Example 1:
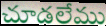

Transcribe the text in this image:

చూడలేము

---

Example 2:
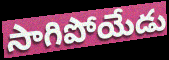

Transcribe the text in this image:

సాగిపోయేడు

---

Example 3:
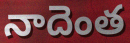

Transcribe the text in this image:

నాదెంత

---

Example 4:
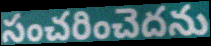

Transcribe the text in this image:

సంచరించెదను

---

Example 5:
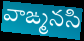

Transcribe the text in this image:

వాఙ్మనసి